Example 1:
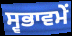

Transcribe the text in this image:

ਸ੍ਵਭਾਵਮੇਂ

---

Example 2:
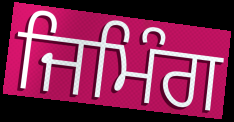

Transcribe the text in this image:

ਜਿਮਿੰਗ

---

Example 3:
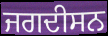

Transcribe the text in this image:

ਜਗਦੀਸਨ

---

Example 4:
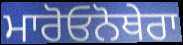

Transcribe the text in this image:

ਮਾਰੋਓਨੋਥੇਰਾ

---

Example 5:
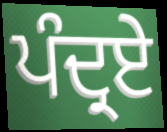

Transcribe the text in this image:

ਪੰਦ੍ਰਏ